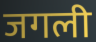
जगली